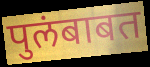
पुलंबाबत